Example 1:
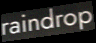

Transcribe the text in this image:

raindrop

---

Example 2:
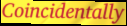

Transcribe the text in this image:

Coincidentally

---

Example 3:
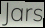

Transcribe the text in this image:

Jars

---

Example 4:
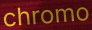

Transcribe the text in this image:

chromo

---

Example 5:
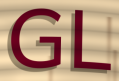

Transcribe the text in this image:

GL